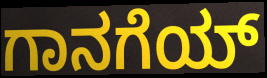
ಗಾನಗೆಯ್